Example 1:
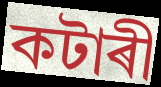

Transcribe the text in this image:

কটাৰী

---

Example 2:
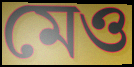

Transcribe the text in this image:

মেও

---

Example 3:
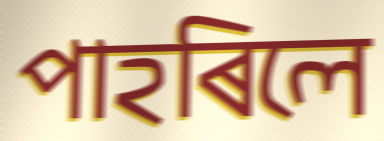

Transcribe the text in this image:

পাহৰিলে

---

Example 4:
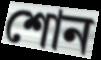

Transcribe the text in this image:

শোন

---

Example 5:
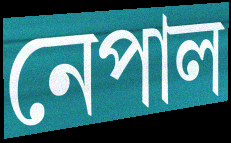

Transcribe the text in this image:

নেপাল